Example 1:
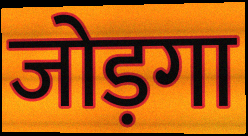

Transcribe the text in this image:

जोड़गा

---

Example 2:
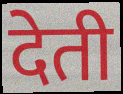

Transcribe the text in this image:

देती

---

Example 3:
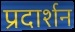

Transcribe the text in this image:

प्रदार्शन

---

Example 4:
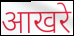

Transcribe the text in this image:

आखरे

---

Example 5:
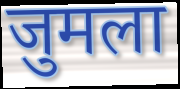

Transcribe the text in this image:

जुमला